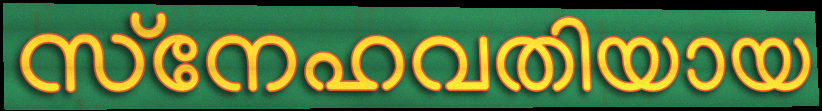
സ്‌നേഹവതിയായ